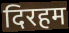
दिरहम